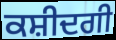
ਕਸ਼ੀਦਗੀ